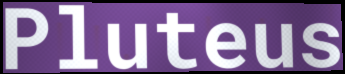
Pluteus